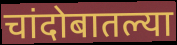
चांदोबातल्या